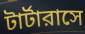
টার্টারাসে